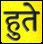
हुते